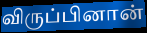
விருப்பினான்